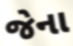
જેના